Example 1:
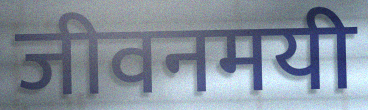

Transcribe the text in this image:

जीवनमयी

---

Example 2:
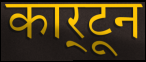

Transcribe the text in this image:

कार्टून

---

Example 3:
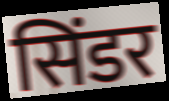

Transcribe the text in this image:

सिंडर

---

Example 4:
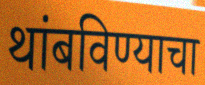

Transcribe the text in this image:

थांबविण्याचा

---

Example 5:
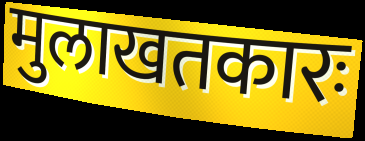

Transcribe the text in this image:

मुलाखतकारः